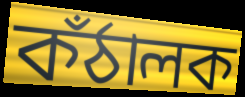
কঁঠালক